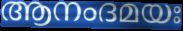
ആനംദമയഃ